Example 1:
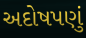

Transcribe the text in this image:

અદોષપણું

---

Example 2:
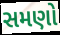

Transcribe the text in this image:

સમણો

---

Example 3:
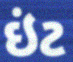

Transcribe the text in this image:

ઇંટ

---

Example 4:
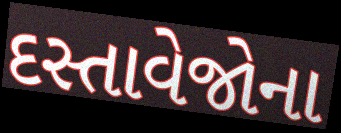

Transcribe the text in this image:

દસ્તાવેજોના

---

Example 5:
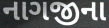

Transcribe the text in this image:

નાગજીના